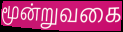
மூன்றுவகை